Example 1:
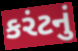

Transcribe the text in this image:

કરંટનું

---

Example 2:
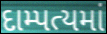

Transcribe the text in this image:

દામ્પત્યમાં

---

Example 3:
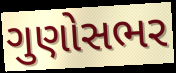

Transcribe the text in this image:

ગુણોસભર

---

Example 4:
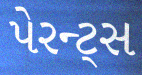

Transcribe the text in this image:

પેરન્ટ્સ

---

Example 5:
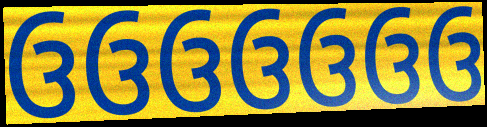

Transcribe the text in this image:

ઉઉઉઉઉઉઉ